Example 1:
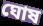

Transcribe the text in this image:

ঘোষ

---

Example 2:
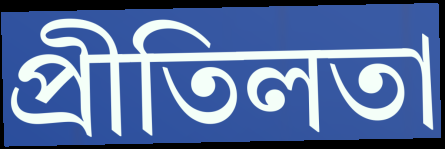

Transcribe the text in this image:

প্ৰীতিলতা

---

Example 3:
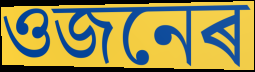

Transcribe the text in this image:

ওজনেৰ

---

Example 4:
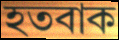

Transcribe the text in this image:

হতবাক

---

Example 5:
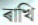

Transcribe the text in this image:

ৰাখি